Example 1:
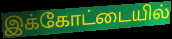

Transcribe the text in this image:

இக்கோட்டையில்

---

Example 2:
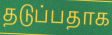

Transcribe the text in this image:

தடுப்பதாக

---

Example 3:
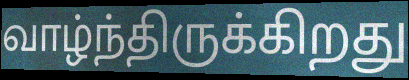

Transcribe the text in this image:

வாழ்ந்திருக்கிறது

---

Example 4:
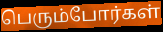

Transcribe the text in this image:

பெரும்போர்கள்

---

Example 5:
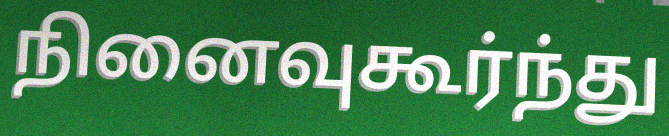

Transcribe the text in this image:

நினைவுகூர்ந்து